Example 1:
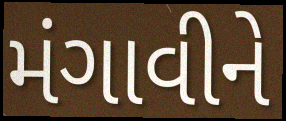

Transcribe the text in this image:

મંગાવીને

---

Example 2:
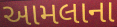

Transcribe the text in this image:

આમલાના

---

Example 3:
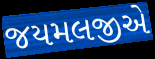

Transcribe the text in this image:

જયમલજીએ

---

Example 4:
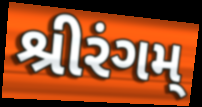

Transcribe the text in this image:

શ્રીરંગમ્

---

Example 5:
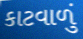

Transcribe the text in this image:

કાટવાળું